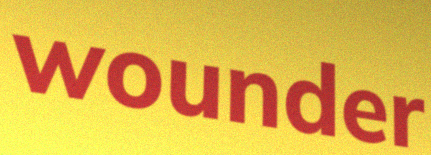
wounder